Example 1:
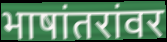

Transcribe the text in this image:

भाषांतरांवर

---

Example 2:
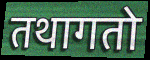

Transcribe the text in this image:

तथागतो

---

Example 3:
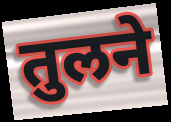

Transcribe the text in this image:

तुलने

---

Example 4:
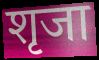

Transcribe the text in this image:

शृजा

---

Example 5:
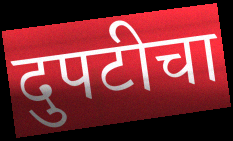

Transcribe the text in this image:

दुपटीचा